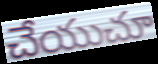
చేయుచూ